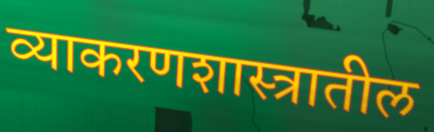
व्याकरणशास्त्रातील